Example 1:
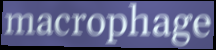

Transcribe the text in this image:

macrophage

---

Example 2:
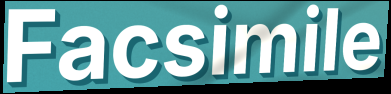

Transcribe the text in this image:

Facsimile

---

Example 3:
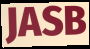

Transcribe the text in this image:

JASB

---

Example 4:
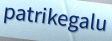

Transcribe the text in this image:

patrikegalu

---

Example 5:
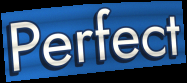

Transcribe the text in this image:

Perfect